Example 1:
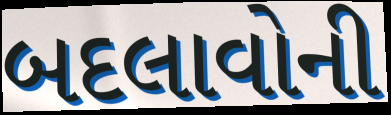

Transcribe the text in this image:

બદલાવોની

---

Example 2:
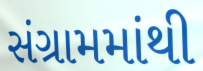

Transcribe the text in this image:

સંગ્રામમાંથી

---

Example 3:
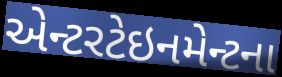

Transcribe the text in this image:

એન્ટરટેઇનમેન્ટના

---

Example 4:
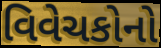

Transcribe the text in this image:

વિવેચકોનો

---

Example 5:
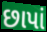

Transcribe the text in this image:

છાપાં